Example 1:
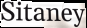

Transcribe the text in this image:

Sitaney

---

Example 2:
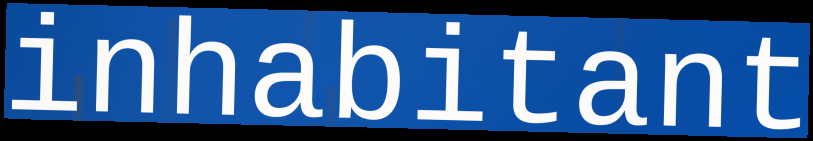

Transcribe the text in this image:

inhabitant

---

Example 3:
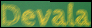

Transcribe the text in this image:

Devala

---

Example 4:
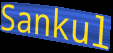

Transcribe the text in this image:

Sankul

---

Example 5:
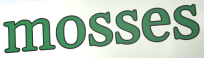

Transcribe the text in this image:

mosses